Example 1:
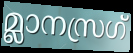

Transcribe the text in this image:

മ്ലാനസ്രഗ്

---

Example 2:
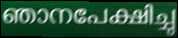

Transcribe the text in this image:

ഞാനപേക്ഷിച്ചു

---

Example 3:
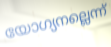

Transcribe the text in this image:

യോഗ്യനല്ലെന്ന്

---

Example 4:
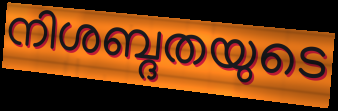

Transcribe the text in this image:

നിശബ്ദതയുടെ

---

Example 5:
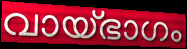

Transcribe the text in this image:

വായ്ഭാഗം